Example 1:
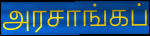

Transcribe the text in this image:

அரசாங்கப்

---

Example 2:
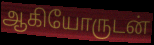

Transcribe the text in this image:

ஆகியோருடன்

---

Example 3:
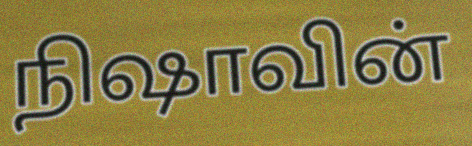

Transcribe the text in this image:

நிஷாவின்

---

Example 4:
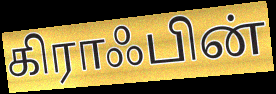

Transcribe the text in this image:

கிராஃபின்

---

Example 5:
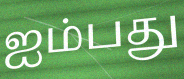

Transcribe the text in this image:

ஐம்பது